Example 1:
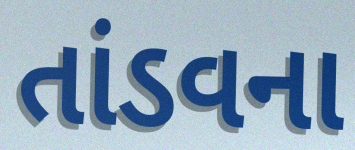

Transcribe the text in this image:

તાંડવના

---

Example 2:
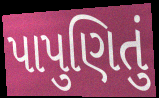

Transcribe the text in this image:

પાપુણિતું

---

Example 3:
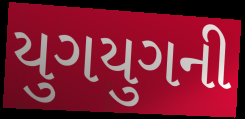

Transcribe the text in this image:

યુગયુગની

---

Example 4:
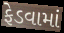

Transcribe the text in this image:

ફેડવામાં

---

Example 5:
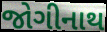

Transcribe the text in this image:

જોગીનાથ